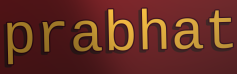
prabhat